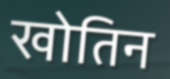
खोतिन